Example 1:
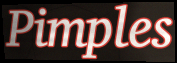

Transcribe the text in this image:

Pimples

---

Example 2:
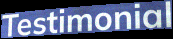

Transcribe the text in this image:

Testimonial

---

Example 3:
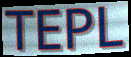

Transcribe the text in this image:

TEPL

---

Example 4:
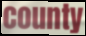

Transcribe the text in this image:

county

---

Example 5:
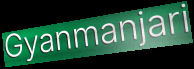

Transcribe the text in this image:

Gyanmanjari